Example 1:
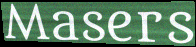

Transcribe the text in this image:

Masers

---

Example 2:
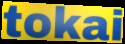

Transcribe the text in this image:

tokai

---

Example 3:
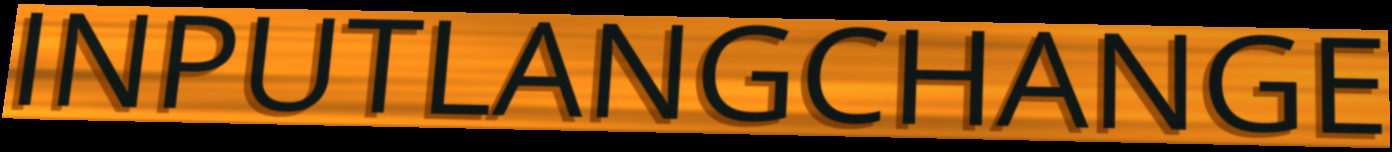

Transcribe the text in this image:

INPUTLANGCHANGE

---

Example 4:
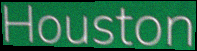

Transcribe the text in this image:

Houston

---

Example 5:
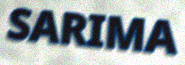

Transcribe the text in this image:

SARIMA